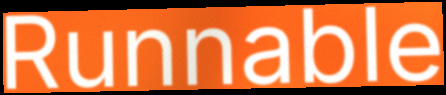
Runnable